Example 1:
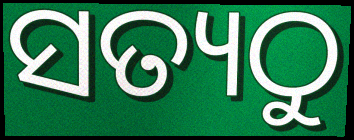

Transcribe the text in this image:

ସତ୍ୟଠୁ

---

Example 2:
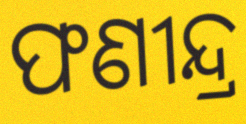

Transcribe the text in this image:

ଫଣୀନ୍ଦ୍ର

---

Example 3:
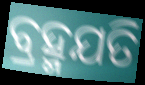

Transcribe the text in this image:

ବ୍ରହ୍ମଯତି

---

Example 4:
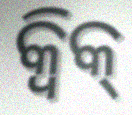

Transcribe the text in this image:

କ୍ୱିକ୍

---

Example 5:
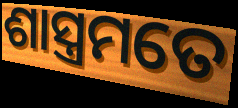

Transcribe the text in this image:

ଶାସ୍ତ୍ରମତେ